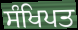
ਸੰਖਿਪਤ